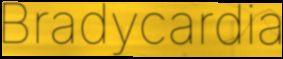
Bradycardia